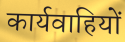
कार्यवाहियों